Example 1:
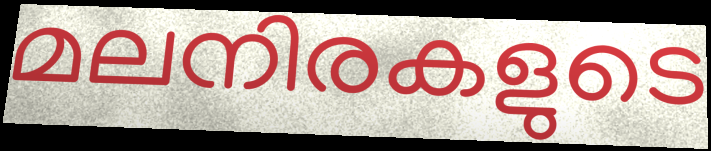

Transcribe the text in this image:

മലനിരകളുടെ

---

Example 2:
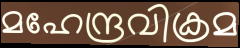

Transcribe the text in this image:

മഹേന്ദ്രവിക്രമ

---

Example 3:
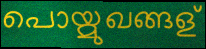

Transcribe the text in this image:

പൊയ്മുഖങ്ങള്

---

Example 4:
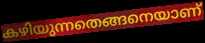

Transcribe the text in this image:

കഴിയുന്നതെങ്ങനെയാണ്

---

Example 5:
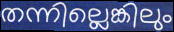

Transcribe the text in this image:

തന്നില്ലെങ്കിലും